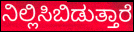
ನಿಲ್ಲಿಸಿಬಿಡುತ್ತಾರೆ